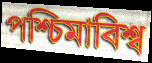
পশ্চিমাবিশ্ব